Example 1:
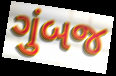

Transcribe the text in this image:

ગુંબજ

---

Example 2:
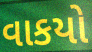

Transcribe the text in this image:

વાકયો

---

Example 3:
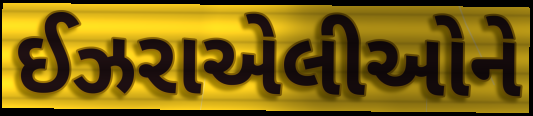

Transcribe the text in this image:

ઈઝરાએલીઓને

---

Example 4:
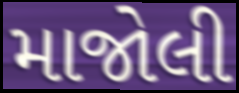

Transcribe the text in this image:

માજોલી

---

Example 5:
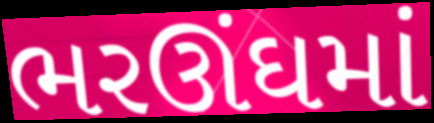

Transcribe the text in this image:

ભરઊંઘમાં